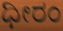
ಧೀರಂ